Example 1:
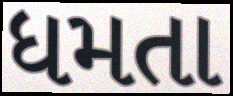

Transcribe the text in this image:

ધમતા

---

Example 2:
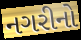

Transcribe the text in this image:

નગરીનો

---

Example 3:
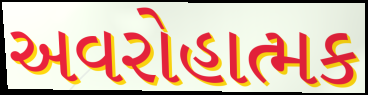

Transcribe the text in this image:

અવરોહાત્મક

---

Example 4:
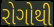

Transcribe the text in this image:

રોગોથી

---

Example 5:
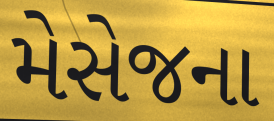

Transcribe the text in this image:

મેસેજના